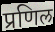
प्रणिल